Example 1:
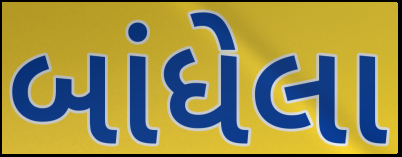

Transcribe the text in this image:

બાંધેલા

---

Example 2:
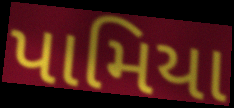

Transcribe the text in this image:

પામિયા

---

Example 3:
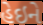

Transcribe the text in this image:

હેઇને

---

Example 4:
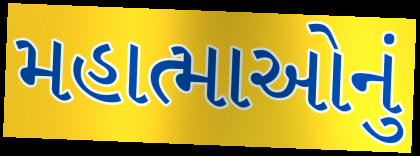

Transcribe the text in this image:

મહાત્માઓનું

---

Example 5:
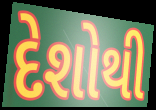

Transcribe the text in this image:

દેશોથી